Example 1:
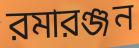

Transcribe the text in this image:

রমারঞ্জন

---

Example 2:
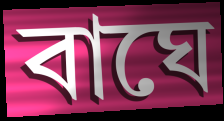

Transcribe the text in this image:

বাঘে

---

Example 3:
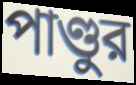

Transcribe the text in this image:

পাণ্ডুর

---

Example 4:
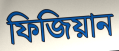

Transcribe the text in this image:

ফিজিয়ান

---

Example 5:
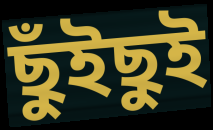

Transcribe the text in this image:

ছুঁইছুই